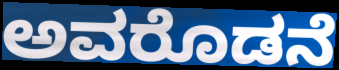
ಅವರೊಡನೆ